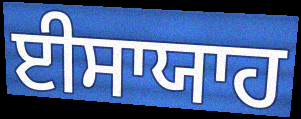
ਈਸਾਯਾਹ